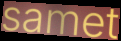
samet